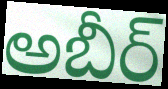
అబీర్